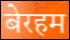
बेरहम